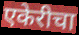
एकेरीचा